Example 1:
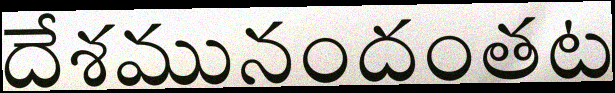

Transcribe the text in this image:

దేశమునందంతట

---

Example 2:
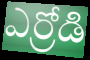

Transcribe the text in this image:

ఎర్రోడి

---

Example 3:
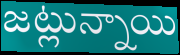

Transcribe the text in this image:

జట్లున్నాయి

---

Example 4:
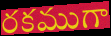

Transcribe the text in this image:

రకముగా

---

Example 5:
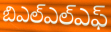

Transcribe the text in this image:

బిఎల్ఎల్ఎఫ్